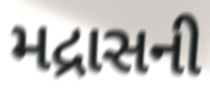
મદ્રાસની